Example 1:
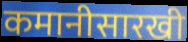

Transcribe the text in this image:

कमानीसारखी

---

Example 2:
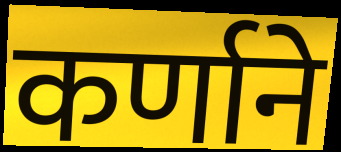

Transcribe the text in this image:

कर्णाने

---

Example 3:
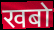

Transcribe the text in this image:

खबो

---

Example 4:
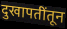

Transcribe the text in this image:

दुखापतींतून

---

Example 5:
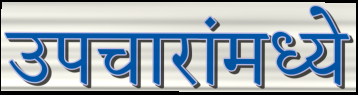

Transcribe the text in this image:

उपचारांमध्ये